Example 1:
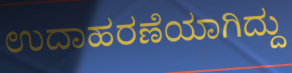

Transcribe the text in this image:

ಉದಾಹರಣೆಯಾಗಿದ್ದು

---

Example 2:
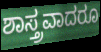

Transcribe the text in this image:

ಶಾಸ್ತ್ರವಾದರೂ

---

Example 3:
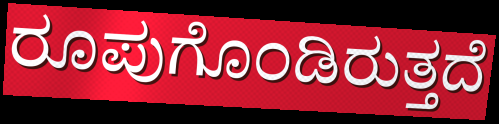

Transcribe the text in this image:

ರೂಪುಗೊಂಡಿರುತ್ತದೆ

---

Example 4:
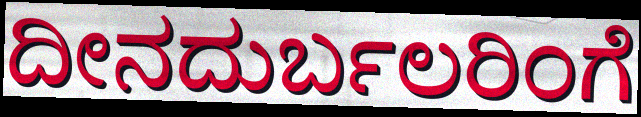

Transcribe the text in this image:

ದೀನದುರ್ಬಲರಿಂಗೆ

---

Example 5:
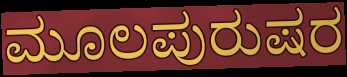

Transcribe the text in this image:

ಮೂಲಪುರುಷರ